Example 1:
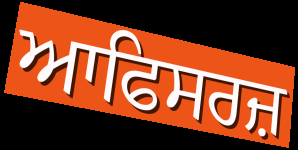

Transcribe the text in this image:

ਆਫਿਸਰਜ਼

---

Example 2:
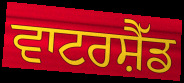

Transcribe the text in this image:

ਵਾਟਰਸ਼ੈੱਡ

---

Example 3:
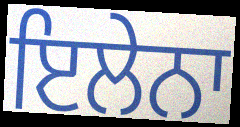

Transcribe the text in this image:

ਇਲੇਨਾ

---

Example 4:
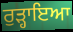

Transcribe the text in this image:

ਰੁੜ੍ਹਾਇਆ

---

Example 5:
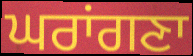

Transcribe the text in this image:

ਘਰਾਂਗਣਾ